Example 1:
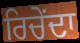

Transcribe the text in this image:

ਰਿਚੇਂਦਾ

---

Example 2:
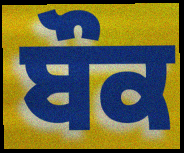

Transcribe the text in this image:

ਬੌਕ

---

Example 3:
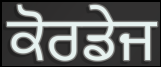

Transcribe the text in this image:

ਕੋਰਡੇਜ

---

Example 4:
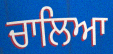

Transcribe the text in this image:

ਚਾਲਿਆ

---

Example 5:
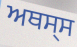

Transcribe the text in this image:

ਅਥਸ੍ਸ